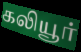
கலியூர்